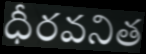
ధీరవనిత